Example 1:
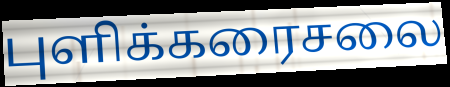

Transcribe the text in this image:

புளிக்கரைசலை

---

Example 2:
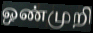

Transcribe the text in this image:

ஒண்முறி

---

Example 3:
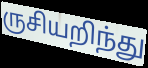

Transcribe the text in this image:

ருசியறிந்து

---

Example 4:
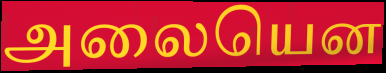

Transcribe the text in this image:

அலையென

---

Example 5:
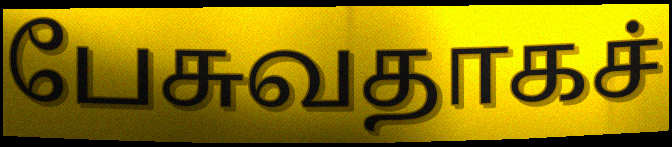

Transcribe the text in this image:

பேசுவதாகச்